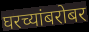
घरच्यांबरोबर